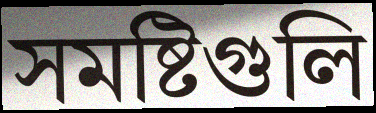
সমষ্টিগুলি